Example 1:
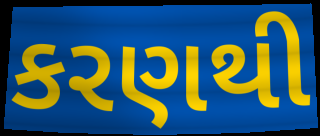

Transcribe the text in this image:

કરણથી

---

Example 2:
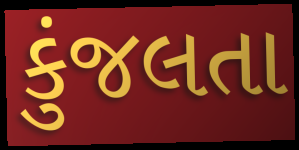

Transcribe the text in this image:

કુંજલતા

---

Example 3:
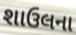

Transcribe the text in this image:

શાઉલના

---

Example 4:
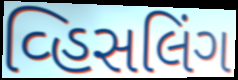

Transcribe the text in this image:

વ્હિસલિંગ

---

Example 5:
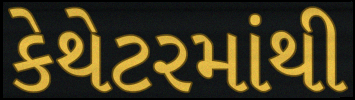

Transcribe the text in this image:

કેથેટરમાંથી